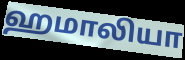
ஹமாலியா